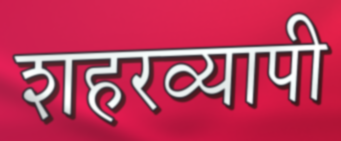
शहरव्यापी